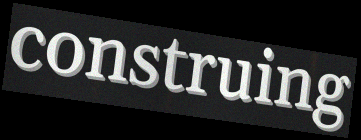
construing